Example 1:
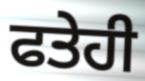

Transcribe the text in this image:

ਫਤੇਹੀ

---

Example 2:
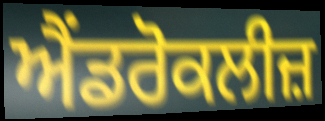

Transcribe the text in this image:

ਐਂਡਰੋਕਲੀਜ਼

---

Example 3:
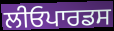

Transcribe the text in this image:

ਲੀਓਪਾਰਡਸ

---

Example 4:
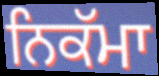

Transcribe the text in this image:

ਨਿਕੱਮਾ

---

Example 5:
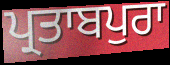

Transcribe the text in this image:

ਪ੍ਰਤਾਬਪੁਰਾ